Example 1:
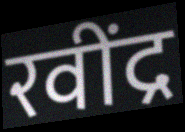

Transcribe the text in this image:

रवींद्र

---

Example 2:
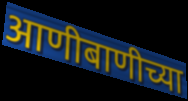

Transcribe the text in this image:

आणीबाणीच्या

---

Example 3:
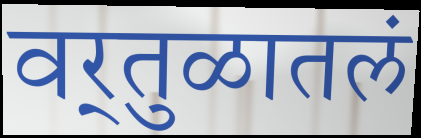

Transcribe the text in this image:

वर्तुळातलं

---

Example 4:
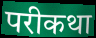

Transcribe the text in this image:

परीकथा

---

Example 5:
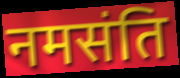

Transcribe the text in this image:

नमसंति